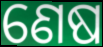
ଣେଷ